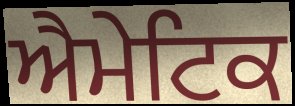
ਐਮੇਟਿਕ